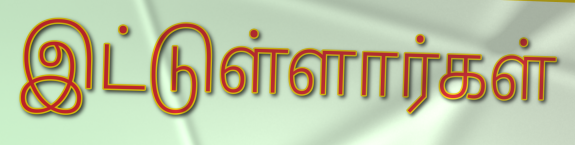
இட்டுள்ளார்கள்